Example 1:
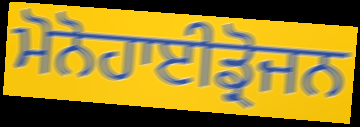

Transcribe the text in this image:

ਮੋਨੋਹਾਈਡ੍ਰੋਜਨ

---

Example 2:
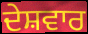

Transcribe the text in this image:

ਦੇਸ਼ਵਾਰ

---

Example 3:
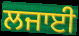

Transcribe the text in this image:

ਲਜਾਈ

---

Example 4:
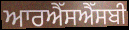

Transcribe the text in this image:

ਆਰਐੱਸਐੱਸਬੀ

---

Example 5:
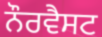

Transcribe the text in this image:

ਨੌਰਵੈਸਟ